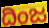
ದಿಂಜ